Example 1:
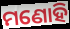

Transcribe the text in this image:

ମଣୋହି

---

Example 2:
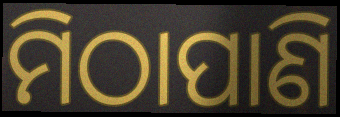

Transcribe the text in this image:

ମିଠାପାଣି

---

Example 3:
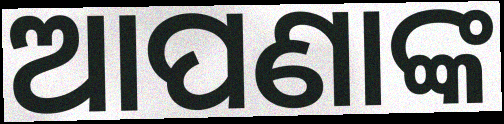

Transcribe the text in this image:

ଆପଣାଙ୍କ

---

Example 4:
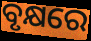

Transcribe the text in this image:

ବୃକ୍ଷରେ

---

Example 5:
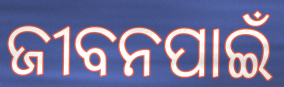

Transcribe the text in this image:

ଜୀବନପାଇଁ